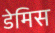
डेमिस